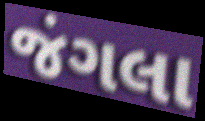
જંગલા